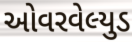
ઓવરવેલ્યુડ